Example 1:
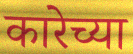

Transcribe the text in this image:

कारेच्या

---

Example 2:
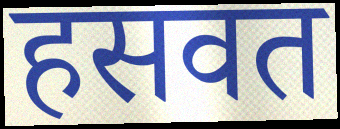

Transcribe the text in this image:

हसवत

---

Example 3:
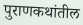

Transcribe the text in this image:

पुराणकथांतील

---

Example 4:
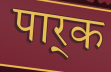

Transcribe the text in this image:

पार्क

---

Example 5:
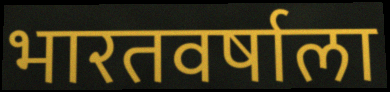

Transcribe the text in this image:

भारतवर्षाला